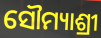
ସୌମ୍ୟାଶ୍ରୀ